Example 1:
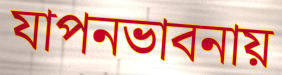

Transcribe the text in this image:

যাপনভাবনায়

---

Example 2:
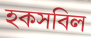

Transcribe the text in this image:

হকসবিল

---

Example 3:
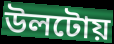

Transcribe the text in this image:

উলটোয়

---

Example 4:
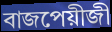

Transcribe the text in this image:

বাজপেয়ীজী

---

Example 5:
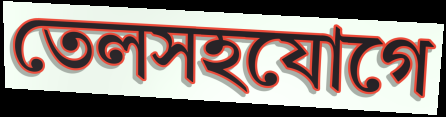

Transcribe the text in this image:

তেলসহযোগে